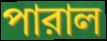
পারাল